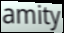
amity